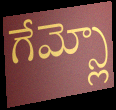
గేమ్స్లో